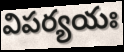
విపర్యయః